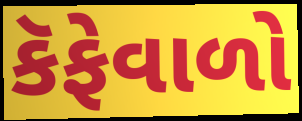
કૅફેવાળો